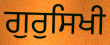
ਗੁਰੁਸਿਖੀ